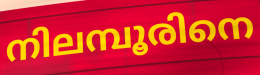
നിലമ്പൂരിനെ